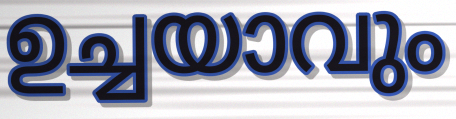
ഉച്ചയാവും